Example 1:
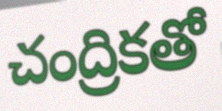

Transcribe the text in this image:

చంద్రికతో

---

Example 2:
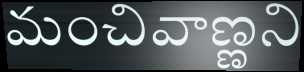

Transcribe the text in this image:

మంచివాణ్ణని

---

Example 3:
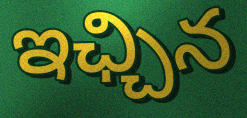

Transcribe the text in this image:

ఇఛ్చిన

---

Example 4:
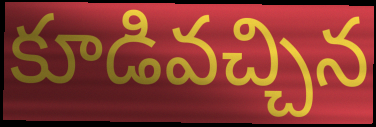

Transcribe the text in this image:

కూడివచ్చిన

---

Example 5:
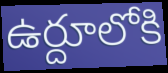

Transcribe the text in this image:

ఉర్దూలోకి